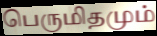
பெருமிதமும்